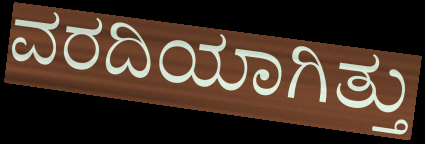
ವರದಿಯಾಗಿತ್ತು